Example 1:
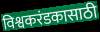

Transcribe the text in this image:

विश्वकरंडकासाठी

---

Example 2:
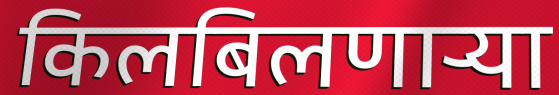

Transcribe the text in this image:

किलबिलणाऱ्या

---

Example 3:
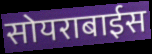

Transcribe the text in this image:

सोयराबाईस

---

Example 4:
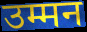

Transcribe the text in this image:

उम्मन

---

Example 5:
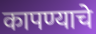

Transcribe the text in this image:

कापण्याचे